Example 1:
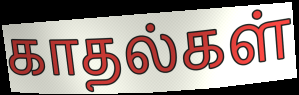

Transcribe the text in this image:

காதல்கள்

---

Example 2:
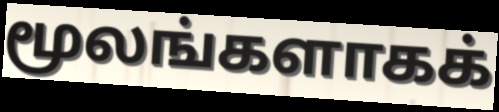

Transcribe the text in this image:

மூலங்களாகக்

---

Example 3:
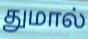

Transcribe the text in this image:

துமால்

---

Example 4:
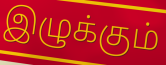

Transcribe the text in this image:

இழுக்கும்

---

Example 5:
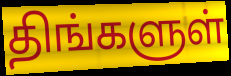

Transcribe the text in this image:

திங்களுள்